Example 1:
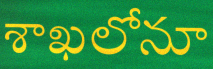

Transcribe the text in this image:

శాఖలోనూ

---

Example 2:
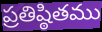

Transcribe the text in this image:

ప్రతిష్ఠితము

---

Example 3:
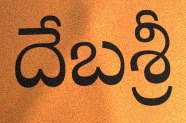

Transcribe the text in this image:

దేబశ్రీ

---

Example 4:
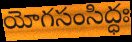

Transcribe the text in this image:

యోగసంసిద్ధః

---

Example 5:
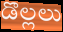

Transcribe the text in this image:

డొల్లలు